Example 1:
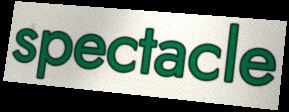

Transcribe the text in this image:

spectacle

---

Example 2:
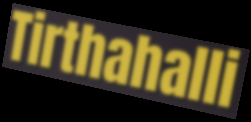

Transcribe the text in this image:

Tirthahalli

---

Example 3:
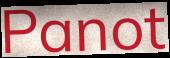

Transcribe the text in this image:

Panot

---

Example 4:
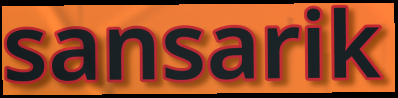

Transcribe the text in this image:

sansarik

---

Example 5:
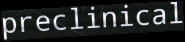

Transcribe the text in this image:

preclinical